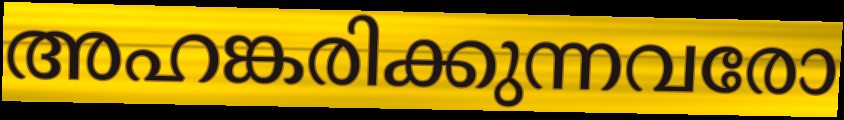
അഹങ്കരിക്കുന്നവരോ